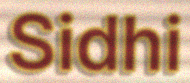
Sidhi